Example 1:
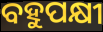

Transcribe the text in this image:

ବହୁପକ୍ଷୀ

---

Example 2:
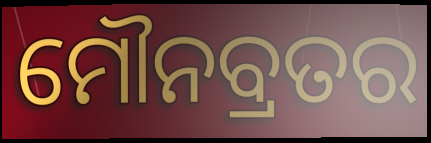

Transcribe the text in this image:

ମୌନବ୍ରତର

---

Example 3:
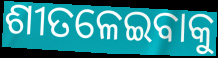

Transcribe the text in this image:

ଶୀତଳେଇବାକୁ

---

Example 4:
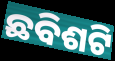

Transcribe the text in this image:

ଛବିଶଟି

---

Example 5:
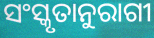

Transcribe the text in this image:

ସଂସ୍କୃତାନୁରାଗୀ